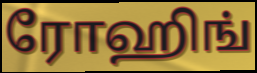
ரோஹிங்